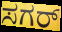
ಸಗರ್